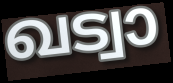
ഖട്വാ